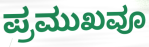
ಪ್ರಮುಖವೂ